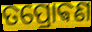
ତପ୍ରୋଵଣ